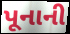
પૂનાની